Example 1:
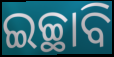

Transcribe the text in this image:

ଇଚ୍ଛାବି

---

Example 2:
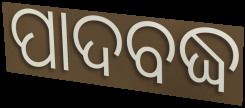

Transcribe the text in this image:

ପାଦବଦ୍ଧ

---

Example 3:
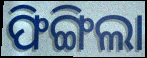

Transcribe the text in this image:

ଫିଙ୍ଗିଲା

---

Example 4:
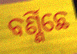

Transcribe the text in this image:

ବର୍ଣ୍ଣିଛେ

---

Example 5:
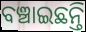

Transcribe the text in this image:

ବଞ୍ଚାଇଛନ୍ତି